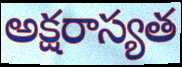
అక్షరాస్యత